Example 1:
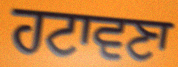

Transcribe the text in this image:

ਹਟਾਵਣਾ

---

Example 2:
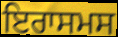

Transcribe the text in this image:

ਇਰਾਸਮਸ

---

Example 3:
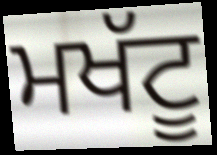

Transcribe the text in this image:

ਮਖੱਟੂ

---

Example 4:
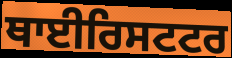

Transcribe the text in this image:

ਥਾਈਰਿਸਟਟਰ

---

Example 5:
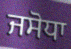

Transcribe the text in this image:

ਜਸੋਧਾ